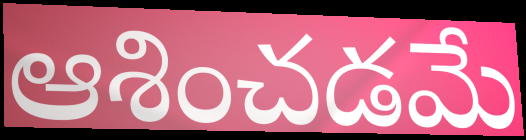
ఆశించడమే